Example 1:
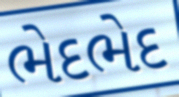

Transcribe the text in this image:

ભેદભેદ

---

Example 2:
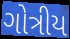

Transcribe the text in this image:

ગોત્રીય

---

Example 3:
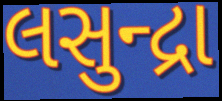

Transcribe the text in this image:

લસુન્દ્રા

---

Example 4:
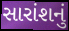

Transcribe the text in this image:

સારાંશનું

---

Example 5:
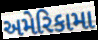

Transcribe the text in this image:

અમેરિકામા